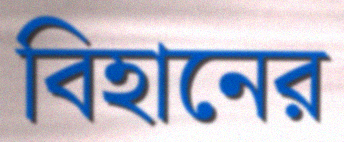
বিহানের